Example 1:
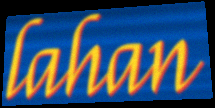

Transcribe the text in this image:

lahan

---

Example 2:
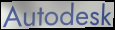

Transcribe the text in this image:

Autodesk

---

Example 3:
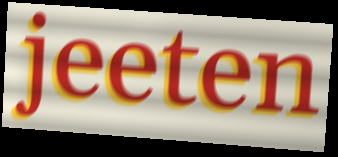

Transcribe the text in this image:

jeeten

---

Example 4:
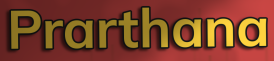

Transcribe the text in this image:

Prarthana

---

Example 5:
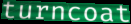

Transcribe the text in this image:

turncoat